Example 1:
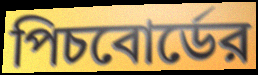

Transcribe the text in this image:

পিচবোর্ডের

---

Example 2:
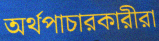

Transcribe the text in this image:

অর্থপাচারকারীরা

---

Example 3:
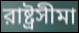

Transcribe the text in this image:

রাষ্ট্রসীমা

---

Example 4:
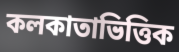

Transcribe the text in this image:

কলকাতাভিত্তিক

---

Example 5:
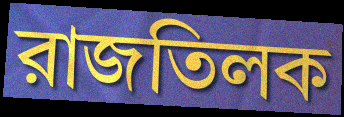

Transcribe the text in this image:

রাজতিলক